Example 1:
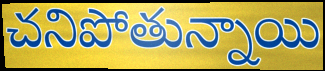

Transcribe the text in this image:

చనిపోతున్నాయి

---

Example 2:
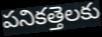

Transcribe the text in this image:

పనికత్తెలకు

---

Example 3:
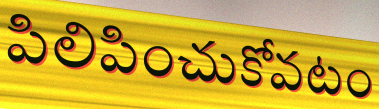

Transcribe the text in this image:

పిలిపించుకోవటం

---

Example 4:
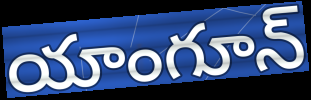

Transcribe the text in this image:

యాంగూన్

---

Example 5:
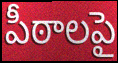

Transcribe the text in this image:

పీఠాలపై